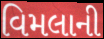
વિમલાની